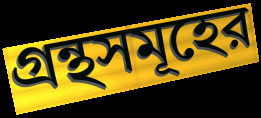
গ্রন্থসমূহের